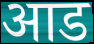
आड